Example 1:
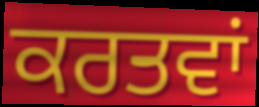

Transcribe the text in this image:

ਕਰਤਵਾਂ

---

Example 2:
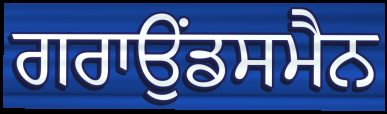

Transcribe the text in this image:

ਗਰਾਉਂਡਸਮੈਨ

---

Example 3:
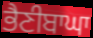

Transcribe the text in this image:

ਭੈਣੀਬਾਘਾ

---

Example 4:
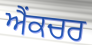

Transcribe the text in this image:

ਐਂਕਚਰ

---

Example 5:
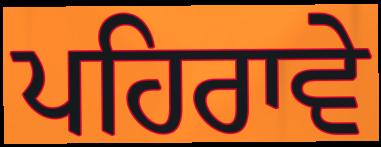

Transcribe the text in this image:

ਪਹਿਰਾਵੇ